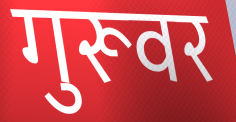
गुरूवर